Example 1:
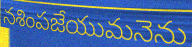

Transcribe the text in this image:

నశింపజేయుమనెను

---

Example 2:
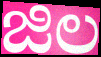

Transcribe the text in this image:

జిల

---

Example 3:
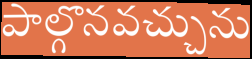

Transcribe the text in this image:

పాల్గొనవచ్చును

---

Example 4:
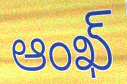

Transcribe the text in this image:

ఆంఖ్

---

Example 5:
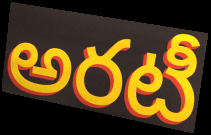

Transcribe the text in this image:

అరటీ